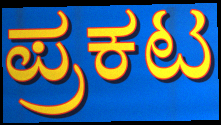
ಪ್ರಕಟ